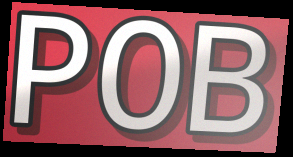
POB